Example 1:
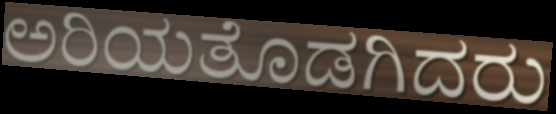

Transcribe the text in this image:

ಅರಿಯತೊಡಗಿದರು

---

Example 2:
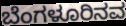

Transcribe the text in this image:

ಬೆಂಗಳೂರಿನವ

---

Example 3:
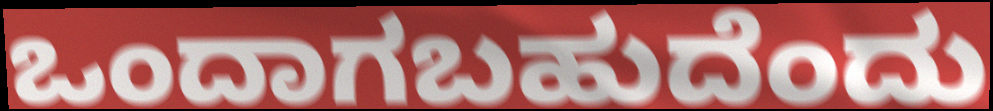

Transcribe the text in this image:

ಒಂದಾಗಬಹುದೆಂದು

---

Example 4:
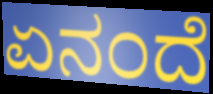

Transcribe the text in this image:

ಏನಂದೆ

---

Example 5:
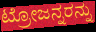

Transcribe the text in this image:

ಟ್ರೋಜನ್ನರನ್ನು